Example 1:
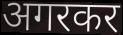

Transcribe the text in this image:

अगरकर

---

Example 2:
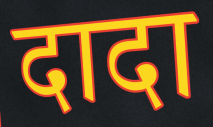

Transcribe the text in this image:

दादा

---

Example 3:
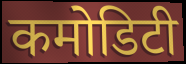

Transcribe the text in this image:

कमोडिटी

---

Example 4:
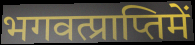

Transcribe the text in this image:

भगवत्प्राप्तिमें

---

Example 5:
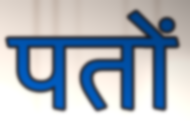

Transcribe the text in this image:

पतों